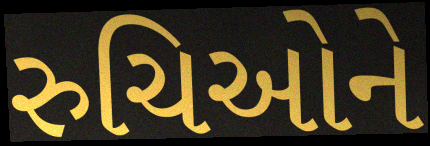
રુચિઓને